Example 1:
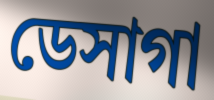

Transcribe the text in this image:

ডেসাগা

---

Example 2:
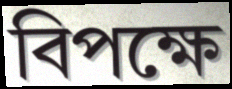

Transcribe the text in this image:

বিপক্ষে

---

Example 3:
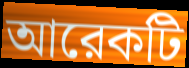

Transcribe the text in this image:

আরেকটি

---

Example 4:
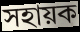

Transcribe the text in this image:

সহায়ক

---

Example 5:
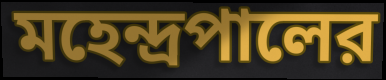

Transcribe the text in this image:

মহেন্দ্রপালের